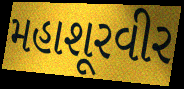
મહાશૂરવીર